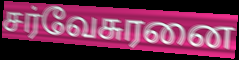
சர்வேசுரனை